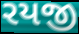
રયજી